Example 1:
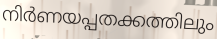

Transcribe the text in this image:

നിർണയപ്പതക്കത്തിലും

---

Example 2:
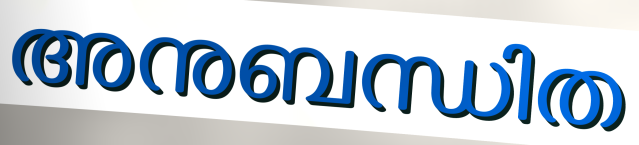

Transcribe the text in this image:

അനുബന്ധിത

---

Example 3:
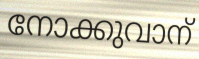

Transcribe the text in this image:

നോക്കുവാന്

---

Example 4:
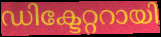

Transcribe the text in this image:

ഡിക്ടേറ്ററായി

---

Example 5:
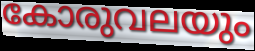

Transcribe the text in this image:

കോരുവലയും